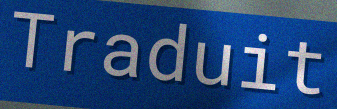
Traduit